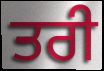
ਤਰੀ